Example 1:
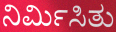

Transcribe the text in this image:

ನಿರ್ಮಿಸಿತು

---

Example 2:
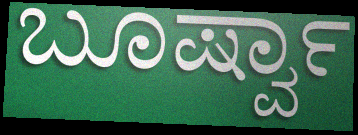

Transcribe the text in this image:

ಬೂರ್ಷ್ವಾ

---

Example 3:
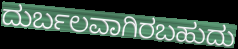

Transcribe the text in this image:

ದುರ್ಬಲವಾಗಿರಬಹುದು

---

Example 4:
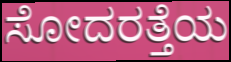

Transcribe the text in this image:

ಸೋದರತ್ತೆಯ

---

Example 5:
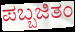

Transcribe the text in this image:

ಪಬ್ಬಜಿತಂ